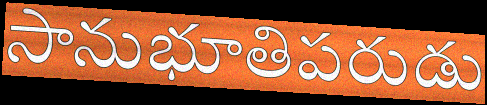
సానుభూతిపరుడు